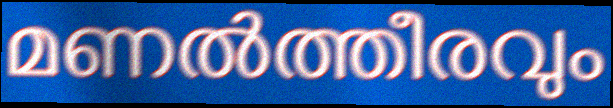
മണൽത്തീരവും